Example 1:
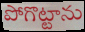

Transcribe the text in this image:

పోగొట్టాను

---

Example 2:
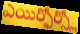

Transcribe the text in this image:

ఎయిర్ఫోర్స్లో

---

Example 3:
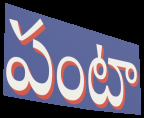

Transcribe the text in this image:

పంటా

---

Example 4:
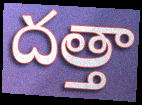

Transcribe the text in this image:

దత్తా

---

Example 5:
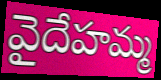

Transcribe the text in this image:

వైదేహమ్మ